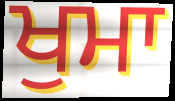
ਖੁਮਾ